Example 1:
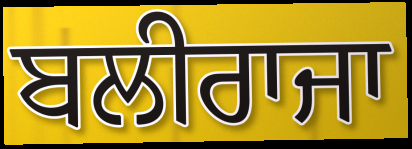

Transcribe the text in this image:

ਬਲੀਰਾਜਾ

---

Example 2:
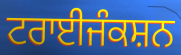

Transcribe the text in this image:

ਟਰਾਈਜੰਕਸ਼ਨ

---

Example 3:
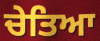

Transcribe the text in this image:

ਚੇਤਿਆ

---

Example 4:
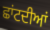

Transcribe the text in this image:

ਛਾਂਟਦੀਆਂ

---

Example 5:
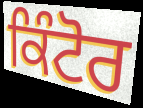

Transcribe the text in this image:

ਕਿੰਟੋਰ